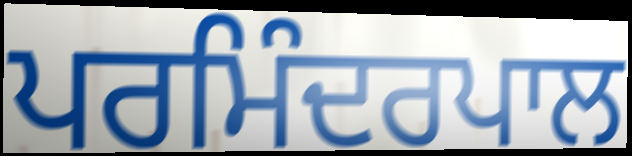
ਪਰਮਿੰਦਰਪਾਲ